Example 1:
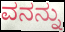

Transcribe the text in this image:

ವನನ್ನು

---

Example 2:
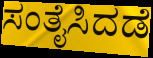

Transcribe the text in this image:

ಸಂತೈಸಿದಡೆ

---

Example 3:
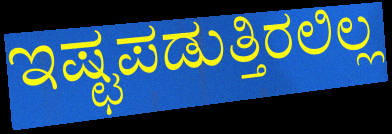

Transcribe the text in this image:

ಇಷ್ಟಪಡುತ್ತಿರಲಿಲ್ಲ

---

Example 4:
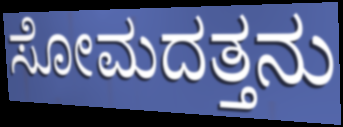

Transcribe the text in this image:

ಸೋಮದತ್ತನು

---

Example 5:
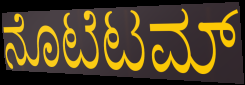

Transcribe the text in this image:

ನೊಟೆಟಮ್